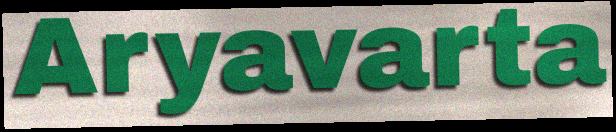
Aryavarta